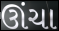
ઊંચા